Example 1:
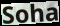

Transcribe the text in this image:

Soha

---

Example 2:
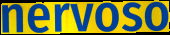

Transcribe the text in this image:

nervoso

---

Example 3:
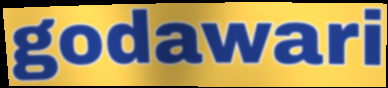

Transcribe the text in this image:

godawari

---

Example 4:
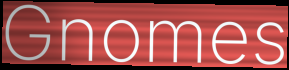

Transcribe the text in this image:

Gnomes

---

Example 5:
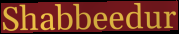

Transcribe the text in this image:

Shabbeedur